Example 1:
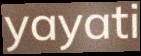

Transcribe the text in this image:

yayati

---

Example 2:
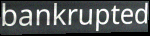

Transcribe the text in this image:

bankrupted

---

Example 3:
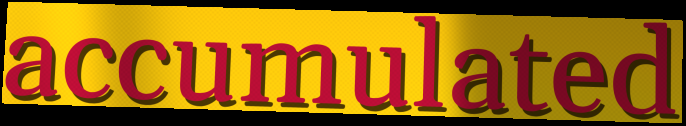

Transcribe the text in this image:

accumulated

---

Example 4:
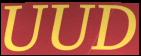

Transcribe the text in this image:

UUD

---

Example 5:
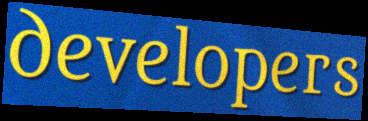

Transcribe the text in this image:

developers